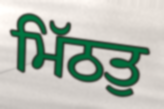
ਮਿੱਠਤੁ